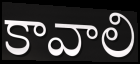
కావాలి